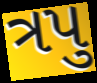
ત્રપુ